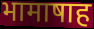
भामाषाह